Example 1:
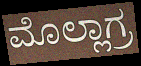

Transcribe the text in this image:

ಮೊಲ್ಲಾಗ್ರ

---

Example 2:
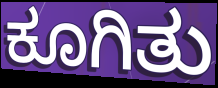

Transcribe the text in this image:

ಕೂಗಿತು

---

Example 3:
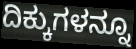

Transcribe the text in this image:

ದಿಕ್ಕುಗಳನ್ನೂ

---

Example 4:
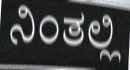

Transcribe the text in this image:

ನಿಂತಲ್ಲಿ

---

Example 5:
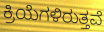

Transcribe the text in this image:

ಕ್ರಿಯೆಗಳಿರುತ್ತವೆ